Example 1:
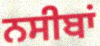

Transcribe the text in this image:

ਨਸੀਬਾਂ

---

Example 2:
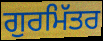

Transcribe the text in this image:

ਗੁਰਮਿੱਤਰ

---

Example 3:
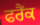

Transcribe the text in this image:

ਫਰੈਂਕ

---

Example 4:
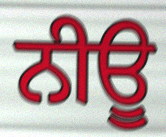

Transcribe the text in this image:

ਨੀਊ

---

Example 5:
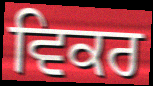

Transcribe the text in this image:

ਵਿਕਰ